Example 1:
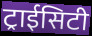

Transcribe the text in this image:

ट्राईसिटी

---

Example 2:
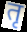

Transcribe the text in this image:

तृ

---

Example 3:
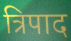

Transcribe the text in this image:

त्रिपाद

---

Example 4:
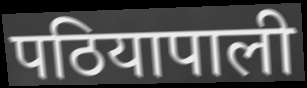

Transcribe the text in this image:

पठियापाली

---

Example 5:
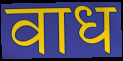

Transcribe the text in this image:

वाध